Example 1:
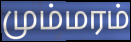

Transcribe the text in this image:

மும்மரம்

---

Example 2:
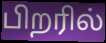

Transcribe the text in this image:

பிறரில்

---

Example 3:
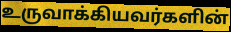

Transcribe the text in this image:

உருவாக்கியவர்களின்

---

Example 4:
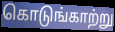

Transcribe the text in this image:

கொடுங்காற்று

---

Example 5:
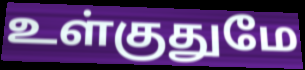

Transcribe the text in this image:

உள்குதுமே